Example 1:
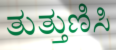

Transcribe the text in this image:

ತುತ್ತುಣಿಸಿ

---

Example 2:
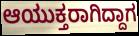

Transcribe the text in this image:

ಆಯುಕ್ತರಾಗಿದ್ದಾಗ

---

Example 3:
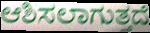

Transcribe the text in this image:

ಆಶಿಸಲಾಗುತ್ತದೆ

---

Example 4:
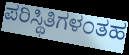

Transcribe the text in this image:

ಪರಿಸ್ಥಿತಿಗಳಂತಹ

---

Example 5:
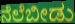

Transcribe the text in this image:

ನೆಲೆಬೀಡು